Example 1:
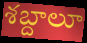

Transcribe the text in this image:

శబ్దాలూ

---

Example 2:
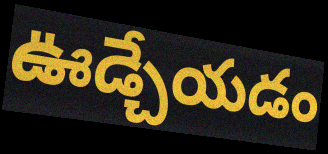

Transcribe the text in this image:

ఊడ్చేయడం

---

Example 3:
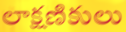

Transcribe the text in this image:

లాక్షణికులు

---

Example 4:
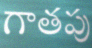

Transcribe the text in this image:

గాతపు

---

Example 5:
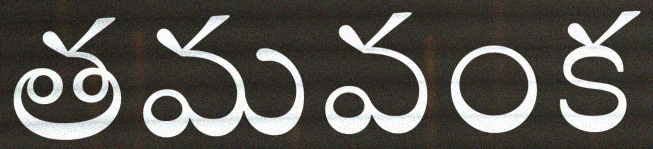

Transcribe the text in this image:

తమవంక